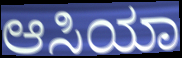
ಆಸಿಯಾ